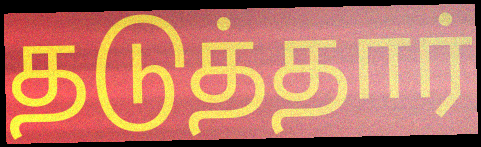
தடுத்தார்